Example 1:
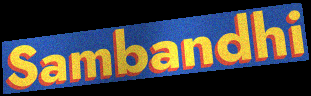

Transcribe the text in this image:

Sambandhi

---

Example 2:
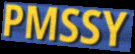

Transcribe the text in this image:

PMSSY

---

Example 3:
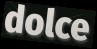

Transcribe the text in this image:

dolce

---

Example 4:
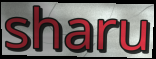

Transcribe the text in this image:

sharu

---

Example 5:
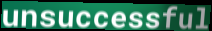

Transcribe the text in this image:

unsuccessful